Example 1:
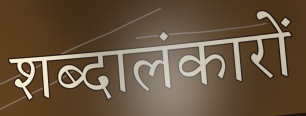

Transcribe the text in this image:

शब्दालंकारों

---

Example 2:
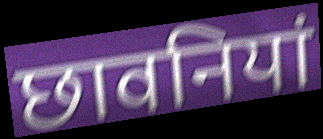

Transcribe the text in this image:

छावनियां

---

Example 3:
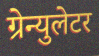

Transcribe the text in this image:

ग्रेन्युलेटर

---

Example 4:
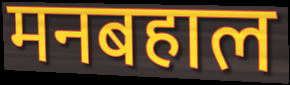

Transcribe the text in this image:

मनबहाल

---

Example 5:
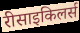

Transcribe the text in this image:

रीसाइकिलर्स